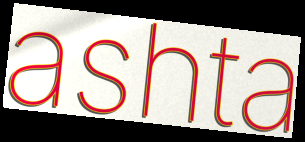
ashta